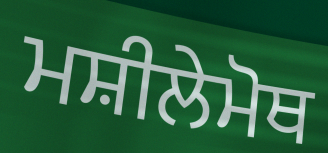
ਮਸ਼ੀਲੇਮੋਥ